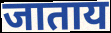
जाताय